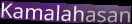
Kamalahasan